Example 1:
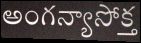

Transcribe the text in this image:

అంగన్యాసోక్త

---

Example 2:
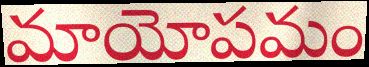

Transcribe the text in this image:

మాయోపమం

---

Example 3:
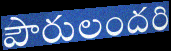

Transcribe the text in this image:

పౌరులందరి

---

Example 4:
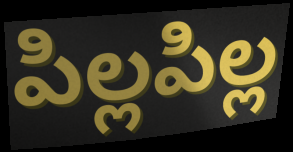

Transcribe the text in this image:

పిల్లపిల్ల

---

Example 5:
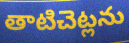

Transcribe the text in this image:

తాటిచెట్లను